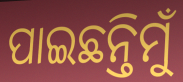
ପାଇଛନ୍ତିମୁଁ